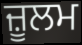
ਜ਼ੂਲਮ